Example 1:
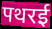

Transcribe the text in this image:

पथरई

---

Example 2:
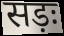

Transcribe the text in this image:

सड़ः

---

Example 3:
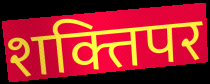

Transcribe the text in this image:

शक्तिपर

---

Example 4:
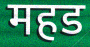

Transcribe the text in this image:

महड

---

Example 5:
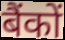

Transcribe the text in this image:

बैंकों